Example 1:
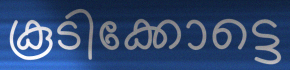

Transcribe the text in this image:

കൂടിക്കോട്ടെ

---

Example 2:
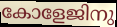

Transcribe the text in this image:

കോളേജിനു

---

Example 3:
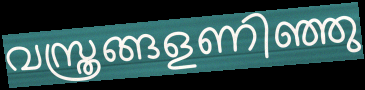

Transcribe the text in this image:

വസ്ത്രങ്ങളണിഞ്ഞു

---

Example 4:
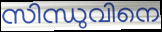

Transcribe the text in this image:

സിന്ധുവിനെ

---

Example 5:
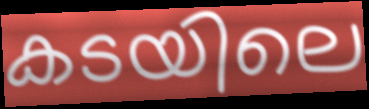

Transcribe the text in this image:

കടയിലെ